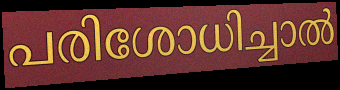
പരിശോധിച്ചാൽ